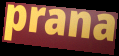
prana